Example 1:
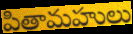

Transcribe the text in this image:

పితామహులు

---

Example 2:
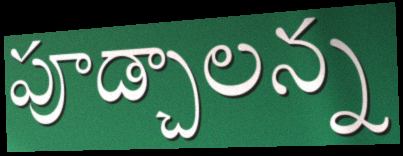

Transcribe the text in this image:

పూడ్చాలన్న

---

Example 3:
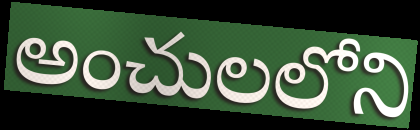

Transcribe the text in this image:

అంచులలోని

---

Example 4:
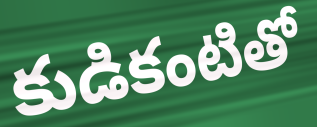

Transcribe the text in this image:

కుడికంటితో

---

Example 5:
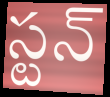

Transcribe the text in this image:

స్టన్